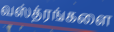
வஸ்த்ரங்களை